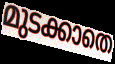
മുടക്കാതെ